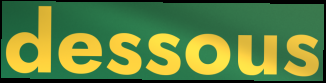
dessous